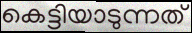
കെട്ടിയാടുന്നത്